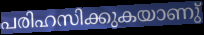
പരിഹസിക്കുകയാണു്